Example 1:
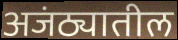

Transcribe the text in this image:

अजंठ्यातील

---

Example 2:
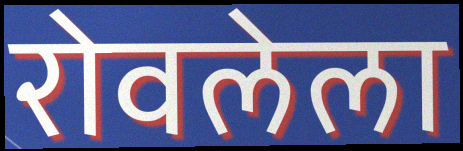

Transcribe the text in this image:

रोवलेला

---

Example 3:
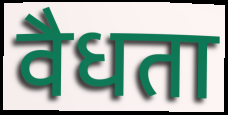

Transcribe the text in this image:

वैधता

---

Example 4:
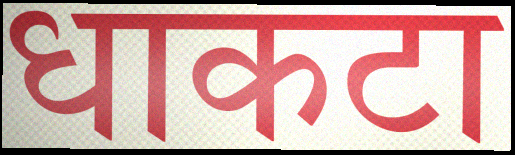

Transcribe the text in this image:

धाकटा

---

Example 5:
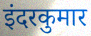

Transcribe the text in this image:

इंदरकुमार